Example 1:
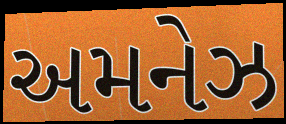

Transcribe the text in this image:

અમનેઝ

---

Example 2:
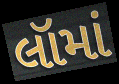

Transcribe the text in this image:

લૉમાં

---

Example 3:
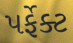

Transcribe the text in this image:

પર્ફેક્ટ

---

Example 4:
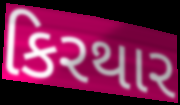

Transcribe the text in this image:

કિરથાર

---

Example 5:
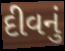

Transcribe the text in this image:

દીવનું